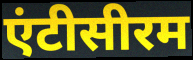
एंटीसीरम